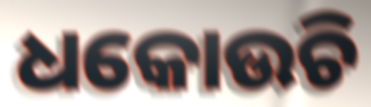
ଧକୋଉଚି